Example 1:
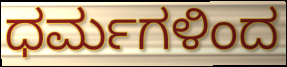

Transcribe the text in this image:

ಧರ್ಮಗಳಿಂದ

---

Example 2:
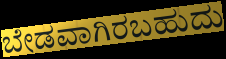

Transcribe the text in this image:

ಬೇಡವಾಗಿರಬಹುದು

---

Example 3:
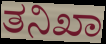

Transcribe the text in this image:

ತನಿಖಾ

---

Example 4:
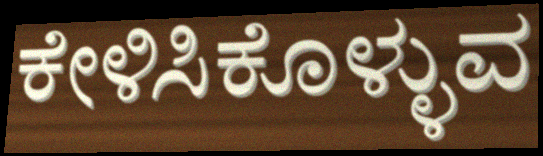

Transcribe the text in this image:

ಕೇಳಿಸಿಕೊಳ್ಳುವ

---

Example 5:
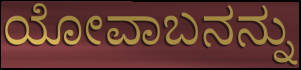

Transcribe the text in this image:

ಯೋವಾಬನನ್ನು